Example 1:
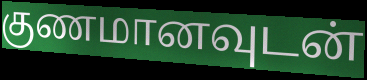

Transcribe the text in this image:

குணமானவுடன்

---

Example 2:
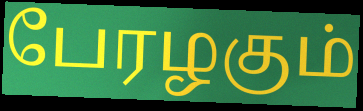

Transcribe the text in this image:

பேரழகும்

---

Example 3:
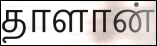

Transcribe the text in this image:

தாளான்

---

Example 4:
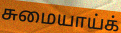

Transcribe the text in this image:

சுமையாய்க்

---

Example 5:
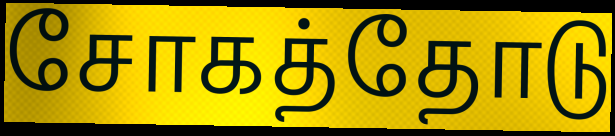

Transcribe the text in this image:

சோகத்தோடு